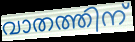
വാതത്തിന്